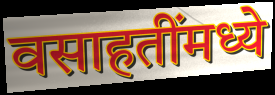
वसाहतींमध्ये